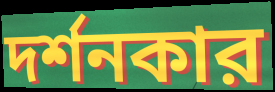
দর্শনকার